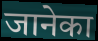
जानेका